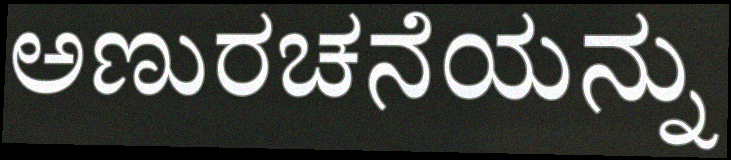
ಅಣುರಚನೆಯನ್ನು